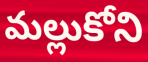
మల్లుకోని